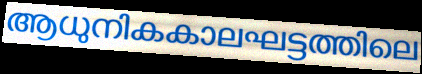
ആധുനികകാലഘട്ടത്തിലെ